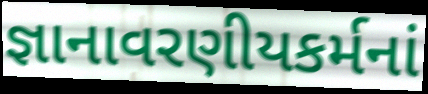
જ્ઞાનાવરણીયકર્મનાં